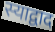
स्याद्वाद